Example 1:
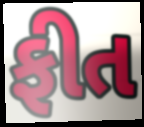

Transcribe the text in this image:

ફીત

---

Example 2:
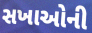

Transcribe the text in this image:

સખાઓની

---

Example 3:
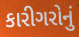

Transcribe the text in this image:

કારીગરોનું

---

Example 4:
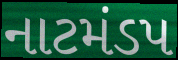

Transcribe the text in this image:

નાટમંડપ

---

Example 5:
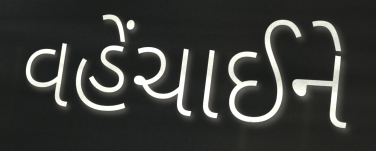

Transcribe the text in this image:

વહેંચાઈને